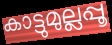
കാട്ടുമുല്ലപ്പൂ